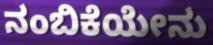
ನಂಬಿಕೆಯೇನು